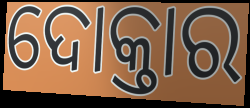
ଦୋକ୍ତାର